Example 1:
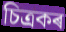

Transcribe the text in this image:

চিত্ৰকৰ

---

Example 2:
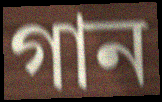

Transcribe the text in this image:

গান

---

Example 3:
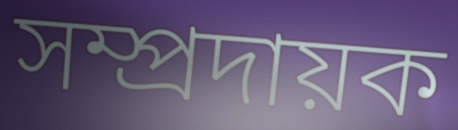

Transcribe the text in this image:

সম্প্ৰদায়ক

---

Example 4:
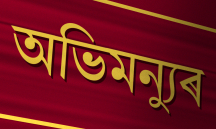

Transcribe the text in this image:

অভিমন্যুৰ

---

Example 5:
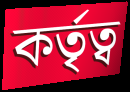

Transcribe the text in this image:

কৰ্তৃত্ব